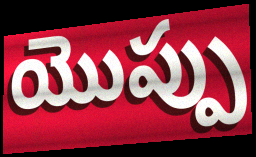
యొప్పు